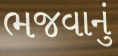
ભજવાનું